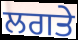
ਲਗਤੇ